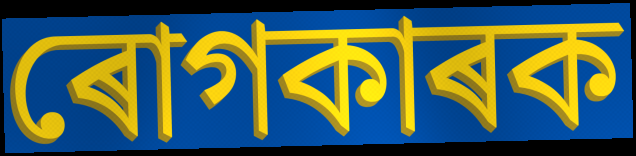
ৰোগকাৰক